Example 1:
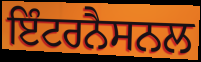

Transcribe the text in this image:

ਇੰਟਰਨੈਸਨਲ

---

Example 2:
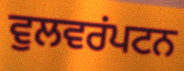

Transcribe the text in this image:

ਵੁਲਵਰਂਪਟਨ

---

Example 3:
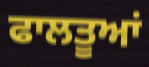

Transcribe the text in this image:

ਫਾਲਤੂਆਂ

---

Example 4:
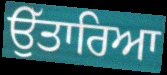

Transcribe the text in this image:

ਉੱਤਾਰਿਆ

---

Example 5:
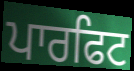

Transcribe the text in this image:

ਪਾਰਫਿਟ